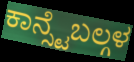
ಕಾನ್ಸ್ಟೆಬಲ್ಗಳ